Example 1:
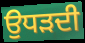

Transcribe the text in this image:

ਉਧੜਦੀ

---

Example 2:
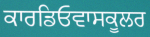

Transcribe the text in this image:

ਕਾਰਡਿਓਵਾਸਕੂਲਰ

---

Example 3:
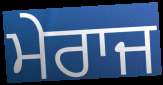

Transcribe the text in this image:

ਮੇਰਾਜ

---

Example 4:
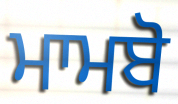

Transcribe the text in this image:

ਮਾਮਬੋ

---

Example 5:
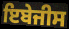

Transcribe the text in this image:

ਇਬੇਜੀਸ